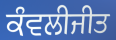
ਕੰਵਲੀਜੀਤ